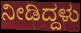
ನೀಡಿದ್ದಳು